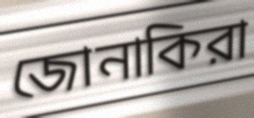
জোনাকিরা